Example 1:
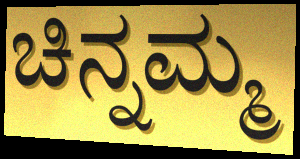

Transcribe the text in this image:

ಚಿನ್ನಮ್ಮ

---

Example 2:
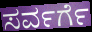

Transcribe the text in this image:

ಸರ್ವರ್ಗೆ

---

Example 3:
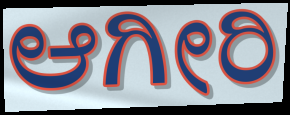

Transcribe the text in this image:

ಆಗೀರಿ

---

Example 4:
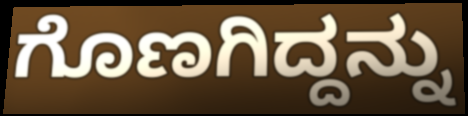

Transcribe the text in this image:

ಗೊಣಗಿದ್ದನ್ನು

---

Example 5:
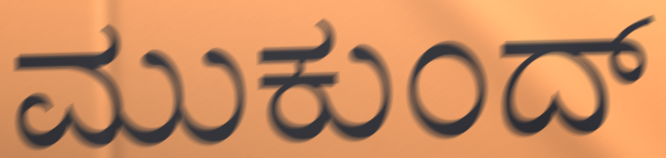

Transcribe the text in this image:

ಮುಕುಂದ್